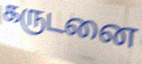
கருடனை